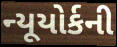
ન્યૂયોર્કની